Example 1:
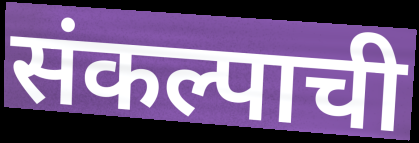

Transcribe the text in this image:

संकल्पाची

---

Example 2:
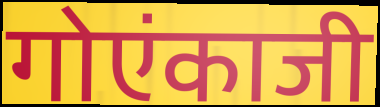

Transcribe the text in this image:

गोएंकाजी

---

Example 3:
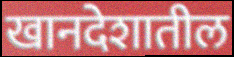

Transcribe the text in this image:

खानदेशातील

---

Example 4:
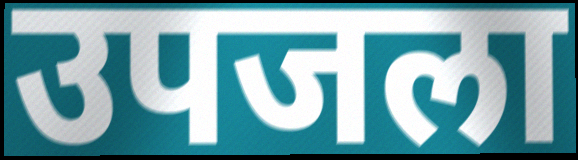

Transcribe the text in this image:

उपजला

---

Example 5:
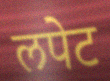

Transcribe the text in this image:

लपेट